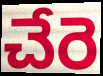
చేరె